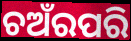
ଚଅଁରପରି